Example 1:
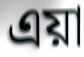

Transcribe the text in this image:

এয়া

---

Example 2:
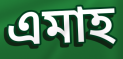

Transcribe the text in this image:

এমাহ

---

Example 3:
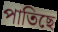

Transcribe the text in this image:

পাতিছে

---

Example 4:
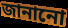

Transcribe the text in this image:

জানানো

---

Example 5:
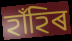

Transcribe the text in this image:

হাঁহিৰ